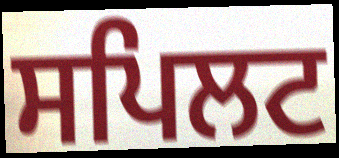
ਸਪਿਲਟ